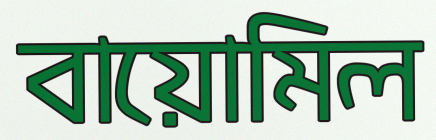
বায়োমিল